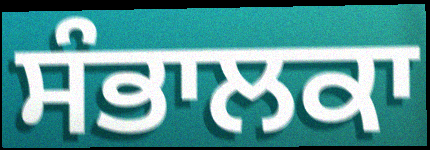
ਸੰਭਾਲਕਾ